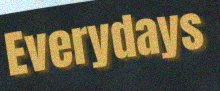
Everydays